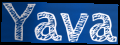
Yava